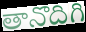
తానొదిగి